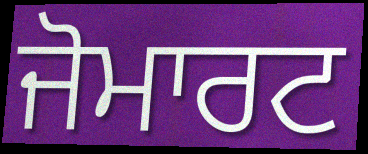
ਜੋਮਾਰਟ